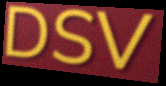
DSV